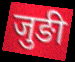
जुङी